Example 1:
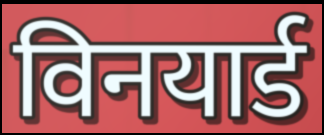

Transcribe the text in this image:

विनयार्ड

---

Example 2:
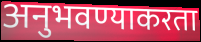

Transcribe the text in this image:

अनुभवण्याकरता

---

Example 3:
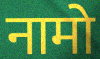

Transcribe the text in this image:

नामो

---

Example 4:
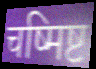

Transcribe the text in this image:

चष्मिष्ट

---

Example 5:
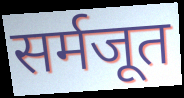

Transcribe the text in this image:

सर्मजूत